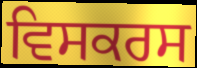
ਵਿਸਕਰਸ